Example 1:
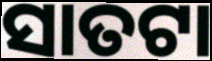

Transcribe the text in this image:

ସାତଟା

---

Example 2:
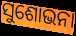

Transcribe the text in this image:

ସୁଶୋଭନା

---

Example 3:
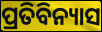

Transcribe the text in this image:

ପ୍ରତିବିନ୍ୟାସ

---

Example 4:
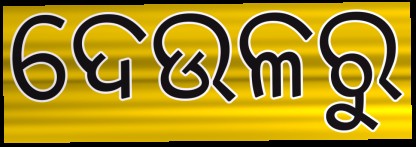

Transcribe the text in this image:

ଦେଉଳରୁ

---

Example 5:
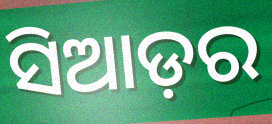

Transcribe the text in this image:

ସିଆଡ଼ର